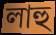
লাহু